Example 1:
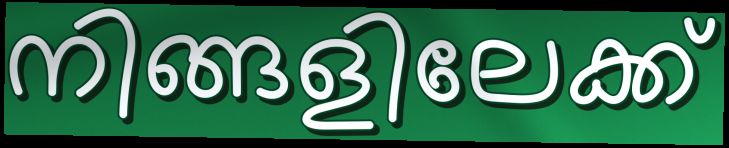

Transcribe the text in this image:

നിങ്ങളിലേക്ക്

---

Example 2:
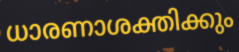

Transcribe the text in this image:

ധാരണാശക്തിക്കും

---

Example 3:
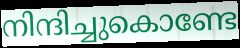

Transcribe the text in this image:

നിന്ദിച്ചുകൊണ്ടേ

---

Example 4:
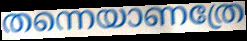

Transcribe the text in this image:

തന്നെയാണത്രേ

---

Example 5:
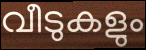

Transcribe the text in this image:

വീടുകളും